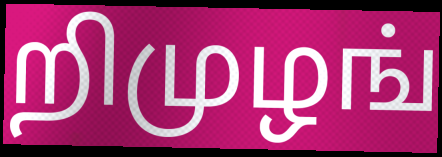
றிமுழங்